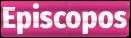
Episcopos